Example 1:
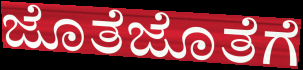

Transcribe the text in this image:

ಜೊತೆಜೊತೆಗೆ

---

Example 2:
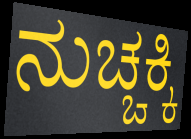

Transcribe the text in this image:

ನುಚ್ಚಕ್ಕಿ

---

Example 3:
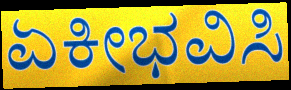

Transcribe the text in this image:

ಏಕೀಭವಿಸಿ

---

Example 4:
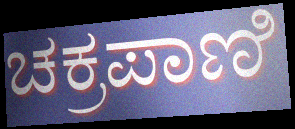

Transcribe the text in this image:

ಚಕ್ರಪಾಣಿ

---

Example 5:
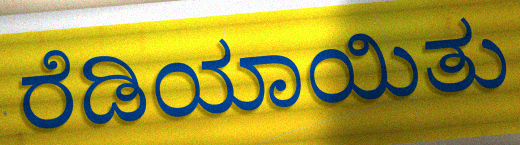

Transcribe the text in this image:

ರೆಡಿಯಾಯಿತು